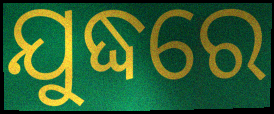
ଯୁଦ୍ଧରେ